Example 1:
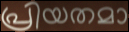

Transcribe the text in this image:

പ്രിയതമാ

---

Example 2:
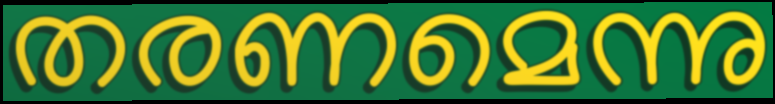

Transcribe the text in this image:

തരണമെന്നു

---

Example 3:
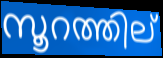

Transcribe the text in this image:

സൂറത്തില്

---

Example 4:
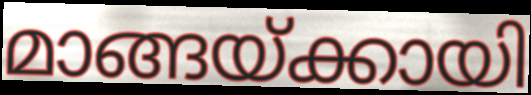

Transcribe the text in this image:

മാങ്ങയ്ക്കായി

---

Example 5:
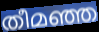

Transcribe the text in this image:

തീമഞ്ഞ